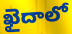
ఖైదాలో